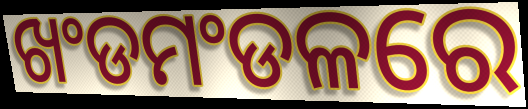
ଖଂଡମଂଡଳରେ